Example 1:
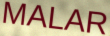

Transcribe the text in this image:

MALAR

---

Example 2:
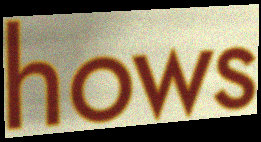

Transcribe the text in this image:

hows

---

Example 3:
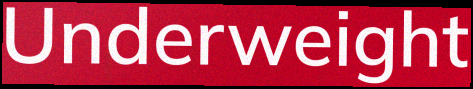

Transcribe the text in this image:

Underweight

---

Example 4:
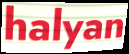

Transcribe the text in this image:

halyan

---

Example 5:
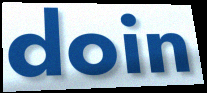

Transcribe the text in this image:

doin